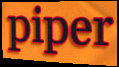
piper